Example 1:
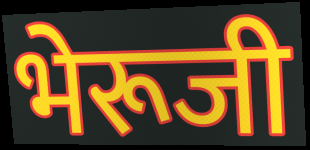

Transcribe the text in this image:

भेरूजी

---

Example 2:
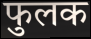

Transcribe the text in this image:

फुलक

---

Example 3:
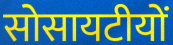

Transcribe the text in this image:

सोसायटीयों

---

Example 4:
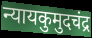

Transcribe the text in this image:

न्यायकुमुदचंद्र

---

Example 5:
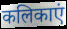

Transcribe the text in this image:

कलिकाएं